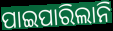
ପାଇପାରିଲାନି